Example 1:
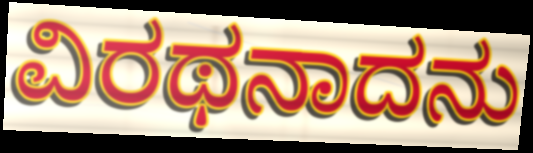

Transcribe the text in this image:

ವಿರಥನಾದನು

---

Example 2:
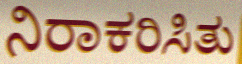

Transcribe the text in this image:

ನಿರಾಕರಿಸಿತು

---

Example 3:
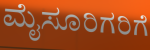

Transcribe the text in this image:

ಮೈಸೂರಿಗರಿಗೆ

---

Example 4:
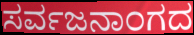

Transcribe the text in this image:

ಸರ್ವಜನಾಂಗದ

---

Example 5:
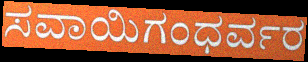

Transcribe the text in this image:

ಸವಾಯಿಗಂಧರ್ವರ